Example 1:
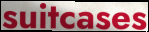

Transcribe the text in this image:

suitcases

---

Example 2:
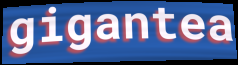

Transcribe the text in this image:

gigantea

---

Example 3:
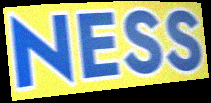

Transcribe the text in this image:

NESS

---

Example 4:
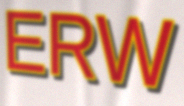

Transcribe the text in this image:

ERW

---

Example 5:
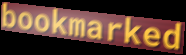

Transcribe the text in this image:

bookmarked